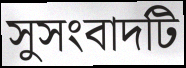
সুসংবাদটি